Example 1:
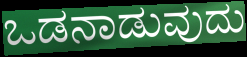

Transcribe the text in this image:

ಒಡನಾಡುವುದು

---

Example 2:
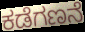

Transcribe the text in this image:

ಕಡೆಗಣನೆ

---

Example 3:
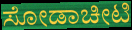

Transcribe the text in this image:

ಸೋಡಾಚೀಟಿ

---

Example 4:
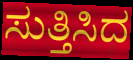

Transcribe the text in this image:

ಸುತ್ತಿಸಿದ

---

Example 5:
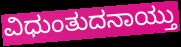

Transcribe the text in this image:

ವಿಧುಂತುದನಾಯ್ತು